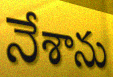
నేశాను